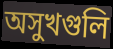
অসুখগুলি